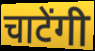
चाटेंगी